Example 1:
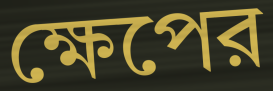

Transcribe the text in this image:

ক্ষেপের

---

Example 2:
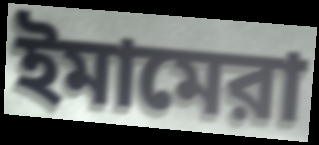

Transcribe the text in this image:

ইমামেরা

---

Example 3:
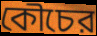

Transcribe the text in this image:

কৌচের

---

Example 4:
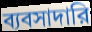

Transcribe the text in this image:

ব্যবসাদারি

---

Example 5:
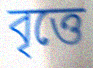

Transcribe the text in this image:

বৃত্তে